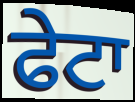
ਫੇਟਾ